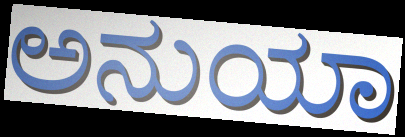
ಅನುಯಾ